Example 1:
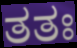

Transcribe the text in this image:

ತತಃ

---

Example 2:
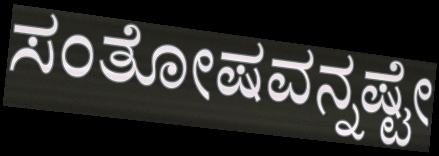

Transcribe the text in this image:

ಸಂತೋಷವನ್ನಷ್ಟೇ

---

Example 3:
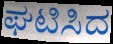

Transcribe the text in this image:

ಘಟಿಸಿದ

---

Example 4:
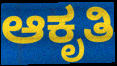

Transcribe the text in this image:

ಆಕೃತಿ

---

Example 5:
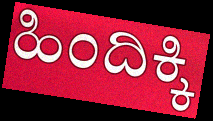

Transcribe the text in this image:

ಹಿಂದಿಕ್ಕಿ